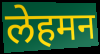
लेहमन